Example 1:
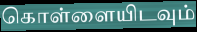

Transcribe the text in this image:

கொள்ளையிடவும்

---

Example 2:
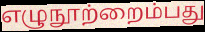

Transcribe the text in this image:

எழுநூற்றைம்பது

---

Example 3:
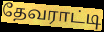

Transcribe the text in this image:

தேவராட்டி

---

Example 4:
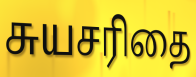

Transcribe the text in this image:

சுயசரிதை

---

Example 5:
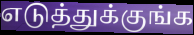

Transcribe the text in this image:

எடுத்துக்குங்க